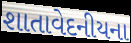
શાતાવેદનીયના